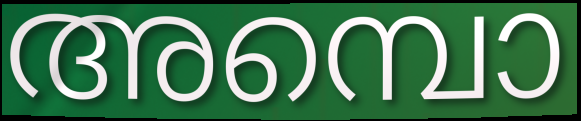
അമ്പൊ